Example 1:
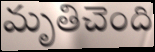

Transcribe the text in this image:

మృతిచెంది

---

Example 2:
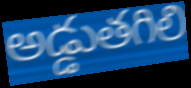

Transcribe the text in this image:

అడ్డుతగిలి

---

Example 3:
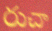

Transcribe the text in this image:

రుచా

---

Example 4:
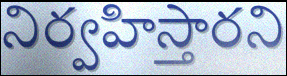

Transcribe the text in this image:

నిర్వహిస్తారని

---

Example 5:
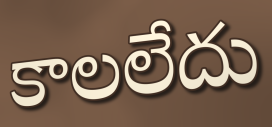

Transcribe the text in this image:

కాలలేదు